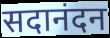
सदानंदन